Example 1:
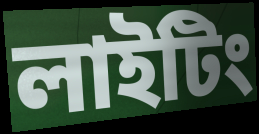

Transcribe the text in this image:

লাইটিং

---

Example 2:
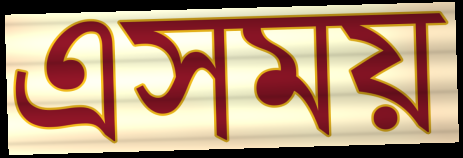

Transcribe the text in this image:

এসময়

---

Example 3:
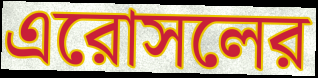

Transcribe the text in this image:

এরোসলের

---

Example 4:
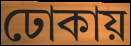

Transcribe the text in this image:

ঢোকায়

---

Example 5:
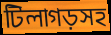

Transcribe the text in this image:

টিলাগড়সহ